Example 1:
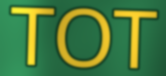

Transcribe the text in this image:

TOT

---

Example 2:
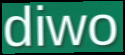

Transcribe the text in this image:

diwo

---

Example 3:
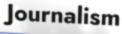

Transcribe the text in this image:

Journalism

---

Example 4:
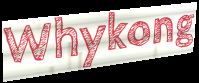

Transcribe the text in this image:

Whykong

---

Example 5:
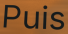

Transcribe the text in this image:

Puis